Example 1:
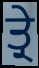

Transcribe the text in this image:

ਤ੍ਰੇ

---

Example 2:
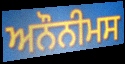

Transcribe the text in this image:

ਅਨੌਨੀਮਸ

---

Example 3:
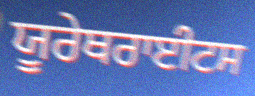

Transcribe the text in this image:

ਯੂਰੇਥਰਾਈਟਸ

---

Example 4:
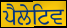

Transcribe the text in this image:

ਪੈਲੇਟਿਵ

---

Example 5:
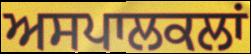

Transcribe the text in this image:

ਅਸਪਾਲਕਲਾਂ